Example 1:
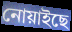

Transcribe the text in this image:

নোয়াইছে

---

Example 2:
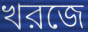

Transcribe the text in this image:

খরজে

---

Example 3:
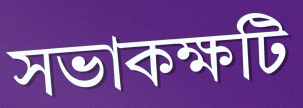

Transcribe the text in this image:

সভাকক্ষটি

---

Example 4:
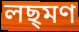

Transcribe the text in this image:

লছ্মণ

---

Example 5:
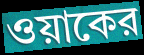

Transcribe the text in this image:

ওয়াকের